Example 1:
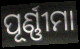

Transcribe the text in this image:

ପୂର୍ଣ୍ଣୀମା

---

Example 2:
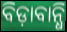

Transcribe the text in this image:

ବିଡ଼ାବାନ୍ଧି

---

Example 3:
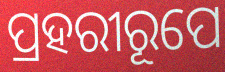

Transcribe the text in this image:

ପ୍ରହରୀରୂପେ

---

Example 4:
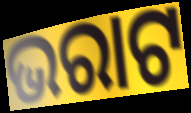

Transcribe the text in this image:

ଭରାଟ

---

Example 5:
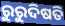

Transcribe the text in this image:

ରୁରୁଦିଷତି